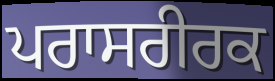
ਪਰਾਸਰੀਰਕ